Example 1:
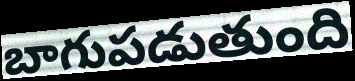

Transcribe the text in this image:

బాగుపడుతుంది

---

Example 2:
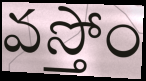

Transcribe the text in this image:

వస్తోం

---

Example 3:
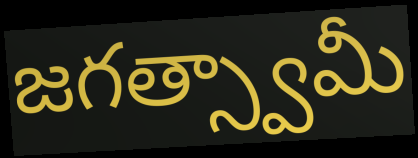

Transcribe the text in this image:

జగత్స్వామీ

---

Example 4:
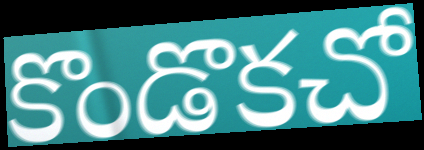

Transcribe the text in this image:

కొండొకచో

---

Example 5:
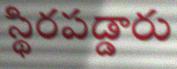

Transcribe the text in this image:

స్థిరపడ్డారు